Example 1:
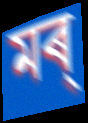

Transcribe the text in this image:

মৰ্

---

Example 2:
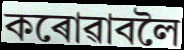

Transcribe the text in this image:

কৰোৱাবলৈ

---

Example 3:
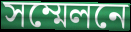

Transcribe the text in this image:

সম্মেলনে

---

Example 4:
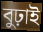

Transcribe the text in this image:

বুঢ়াই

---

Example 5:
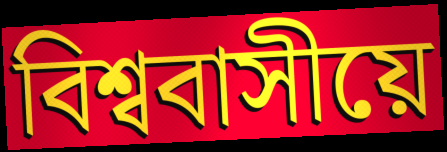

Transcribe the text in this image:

বিশ্ববাসীয়ে